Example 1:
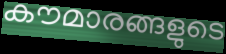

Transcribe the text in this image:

കൗമാരങ്ങളുടെ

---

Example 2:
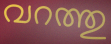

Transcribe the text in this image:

വറത്തു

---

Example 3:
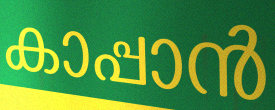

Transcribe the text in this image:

കാപ്പാൻ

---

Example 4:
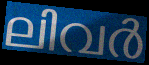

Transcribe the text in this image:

ലിവർ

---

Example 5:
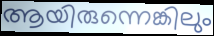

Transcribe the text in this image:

ആയിരുന്നെങ്കിലും